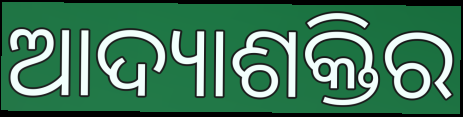
ଆଦ୍ୟାଶକ୍ତିର